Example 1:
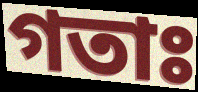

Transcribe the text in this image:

গতাঃ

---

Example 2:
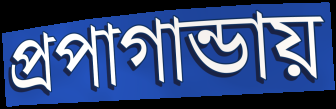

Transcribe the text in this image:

প্রপাগান্ডায়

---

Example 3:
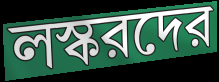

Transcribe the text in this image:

লস্করদের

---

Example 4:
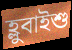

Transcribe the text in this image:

হ্লুবাইশু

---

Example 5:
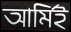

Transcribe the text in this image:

আর্মিই